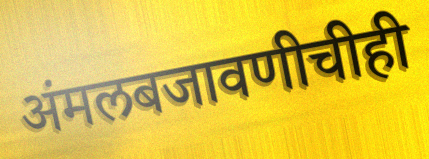
अंमलबजावणीचीही